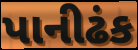
પાનીઢંક